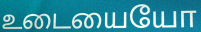
உடையையோ